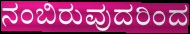
ನಂಬಿರುವುದರಿಂದ